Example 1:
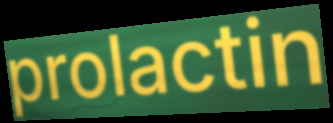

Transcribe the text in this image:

prolactin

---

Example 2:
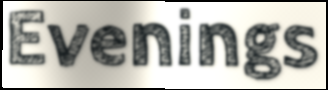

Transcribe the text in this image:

Evenings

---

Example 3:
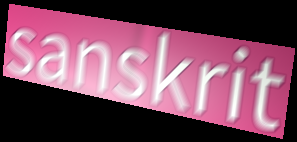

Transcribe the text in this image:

sanskrit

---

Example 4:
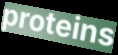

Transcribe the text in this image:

proteins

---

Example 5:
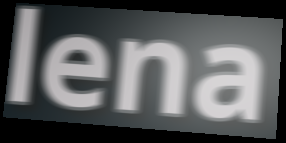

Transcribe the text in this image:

lena